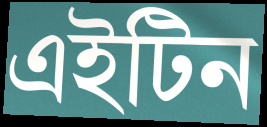
এইটিন